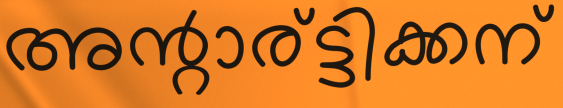
അന്റാര്ട്ടിക്കന്